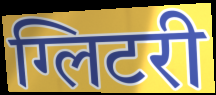
ग्लिटरी